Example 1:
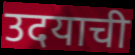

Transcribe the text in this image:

उदयाची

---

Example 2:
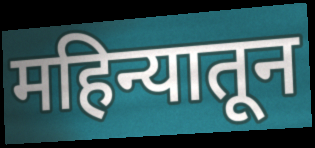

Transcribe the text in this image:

महिन्यातून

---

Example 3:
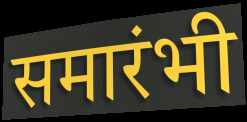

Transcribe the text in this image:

समारंभी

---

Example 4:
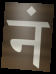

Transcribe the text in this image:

नं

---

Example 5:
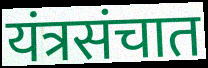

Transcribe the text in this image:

यंत्रसंचात